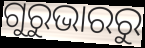
ଗୁରୁଭାରରୁ